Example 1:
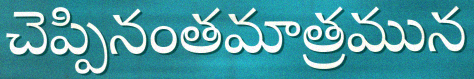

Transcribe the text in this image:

చెప్పినంతమాత్రమున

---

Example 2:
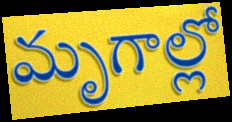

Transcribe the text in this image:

మృగాల్లో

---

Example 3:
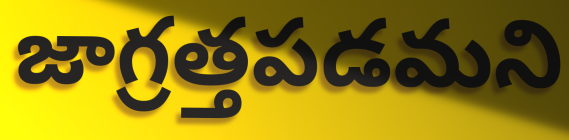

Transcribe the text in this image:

జాగ్రత్తపడమని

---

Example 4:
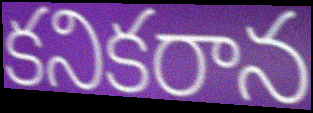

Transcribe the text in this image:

కనికరాన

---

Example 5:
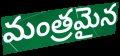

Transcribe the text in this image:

మంత్రమైన